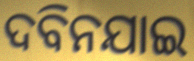
ଦବିନଯାଇ